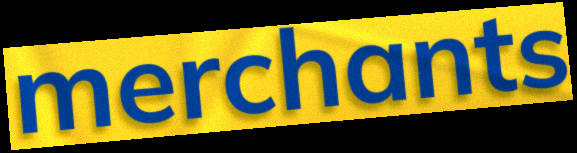
merchants